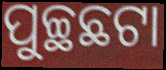
ପୁଚ୍ଛଛଟା